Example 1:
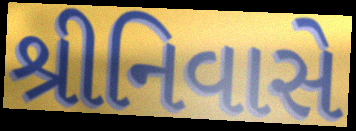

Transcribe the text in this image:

શ્રીનિવાસે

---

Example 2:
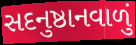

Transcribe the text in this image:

સદનુષ્ઠાનવાળું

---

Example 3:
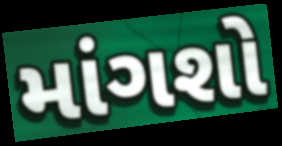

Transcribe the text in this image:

માંગશો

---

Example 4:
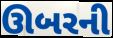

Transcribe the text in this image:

ઊબરની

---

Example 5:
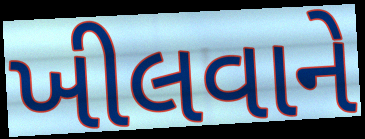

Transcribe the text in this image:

ખીલવાને